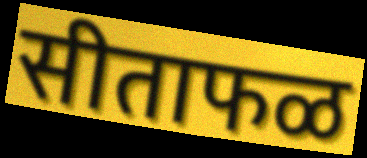
सीताफळ